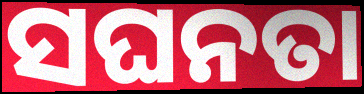
ସଘନତା